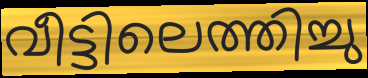
വീട്ടിലെത്തിച്ചു